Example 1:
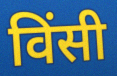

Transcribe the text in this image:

विंसी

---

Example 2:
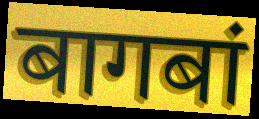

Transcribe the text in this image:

बागबां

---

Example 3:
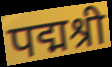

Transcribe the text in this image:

पद्मश्री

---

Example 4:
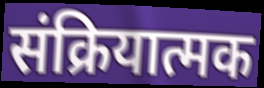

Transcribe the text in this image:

संक्रियात्मक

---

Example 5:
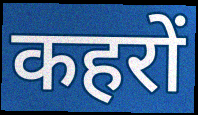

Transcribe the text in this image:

कहरों